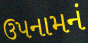
ઉપનામનં